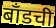
बाँडची